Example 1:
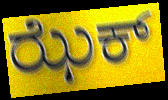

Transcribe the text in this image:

ಝೆಕ್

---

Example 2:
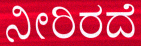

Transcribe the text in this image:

ನೀರಿರದೆ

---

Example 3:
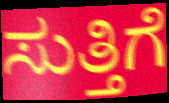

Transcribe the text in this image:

ಸುತ್ತಿಗೆ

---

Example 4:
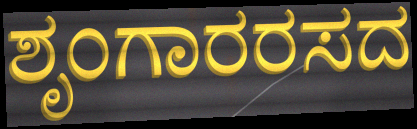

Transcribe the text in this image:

ಶೃಂಗಾರರಸದ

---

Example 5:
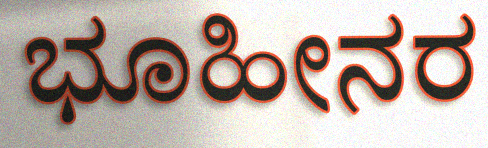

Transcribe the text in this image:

ಭೂಹೀನರ